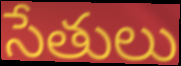
సేతులు